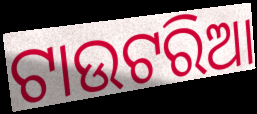
ଟାଉଟରିଆ